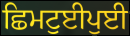
ਛਿਮਟੁਈਪੁਈ